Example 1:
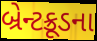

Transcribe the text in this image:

બ્રેન્ટક્રૂડના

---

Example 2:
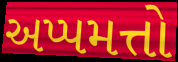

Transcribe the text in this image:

અપ્પમત્તો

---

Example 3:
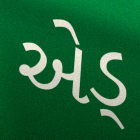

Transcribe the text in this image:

એડ્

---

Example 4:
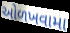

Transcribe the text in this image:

ઓળખવામા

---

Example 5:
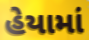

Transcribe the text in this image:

હેયામાં